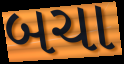
બચા